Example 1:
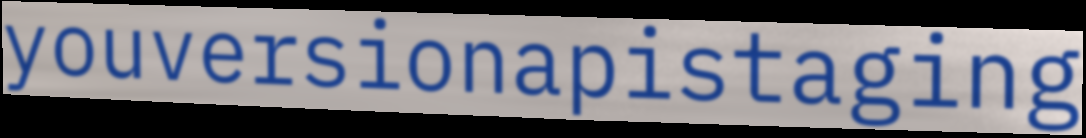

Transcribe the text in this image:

youversionapistaging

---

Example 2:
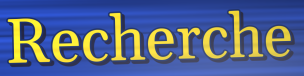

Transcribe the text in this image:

Recherche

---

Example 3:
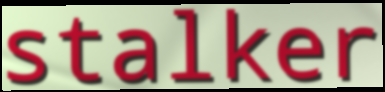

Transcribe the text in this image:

stalker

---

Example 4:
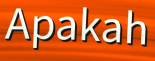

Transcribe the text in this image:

Apakah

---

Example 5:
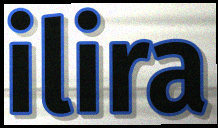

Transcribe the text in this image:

ilira